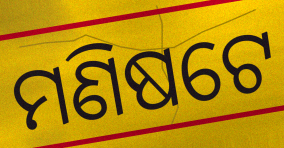
ମଣିଷଟେ